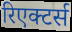
रिएक्टर्स